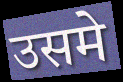
उसमे